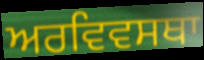
ਅਰਵਿਵਸਥਾ